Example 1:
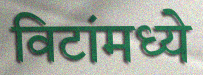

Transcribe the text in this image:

विटांमध्ये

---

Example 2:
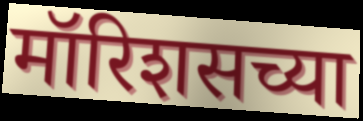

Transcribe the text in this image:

मॉरिशसच्या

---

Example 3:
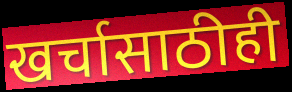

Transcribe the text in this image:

खर्चासाठीही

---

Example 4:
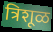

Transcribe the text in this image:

त्रिशूळ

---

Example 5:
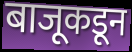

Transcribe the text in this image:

बाजूकडून